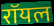
रॉयल